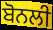
ਬੋਨਲੀ